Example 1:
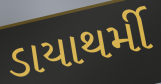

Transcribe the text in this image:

ડાયાથર્મી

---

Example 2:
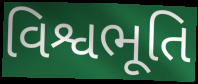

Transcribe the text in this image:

વિશ્વભૂતિ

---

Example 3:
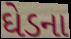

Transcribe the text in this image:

ઘેડના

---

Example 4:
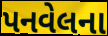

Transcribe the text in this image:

પનવેલના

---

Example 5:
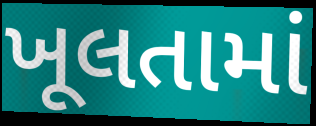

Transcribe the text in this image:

ખૂલતામાં